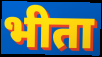
भीता